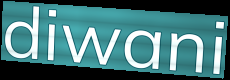
diwani